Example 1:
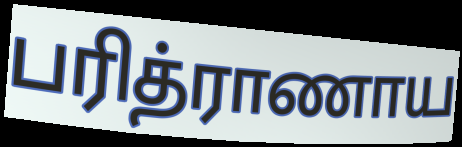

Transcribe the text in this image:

பரித்ராணாய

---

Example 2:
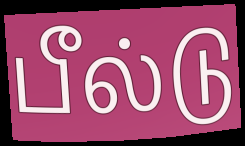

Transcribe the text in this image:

பீல்டு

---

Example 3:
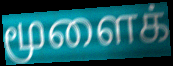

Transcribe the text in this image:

மூளைக்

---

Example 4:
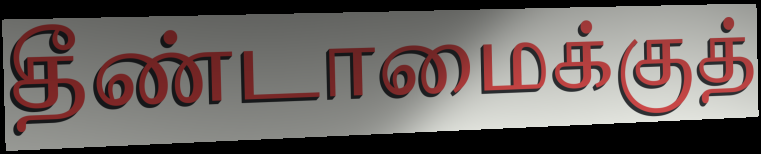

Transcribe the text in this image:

தீண்டாமைக்குத்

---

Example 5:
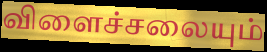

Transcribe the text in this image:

விளைச்சலையும்